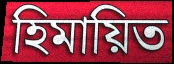
হিমায়িত